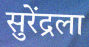
सुरेंद्रला